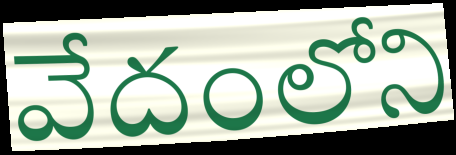
వేదంలోని